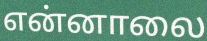
என்னாலை